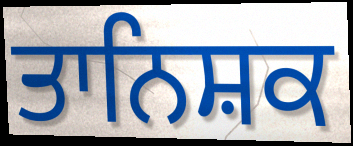
ਤਾਨਿਸ਼ਕ